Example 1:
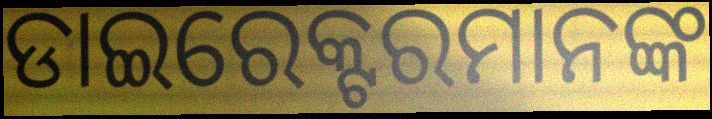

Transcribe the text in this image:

ଡାଇରେକ୍ଟରମାନଙ୍କ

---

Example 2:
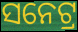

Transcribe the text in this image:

ସନେଟ୍ର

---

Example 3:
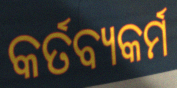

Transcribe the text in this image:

କର୍ତବ୍ଯକର୍ମ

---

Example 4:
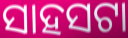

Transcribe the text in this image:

ସାହସଟା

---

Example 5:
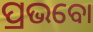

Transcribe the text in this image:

ପ୍ରଭବୋ